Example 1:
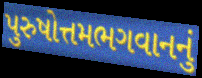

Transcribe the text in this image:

પુરુષોત્તમભગવાનનું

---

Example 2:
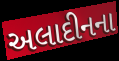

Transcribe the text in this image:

અલાદીનના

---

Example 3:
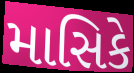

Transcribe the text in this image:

માસિકે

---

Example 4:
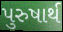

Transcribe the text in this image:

પુરુષાર્થ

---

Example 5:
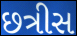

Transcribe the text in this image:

છત્રીસ